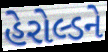
હેરોલ્ડને